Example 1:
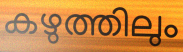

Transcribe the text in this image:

കഴുത്തിലും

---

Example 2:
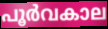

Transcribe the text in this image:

പൂർവകാല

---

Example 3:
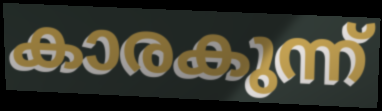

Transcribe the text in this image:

കാരകുന്ന്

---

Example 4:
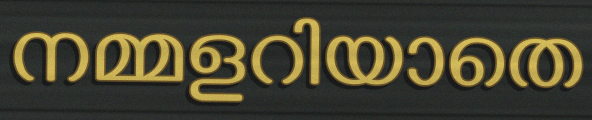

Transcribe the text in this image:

നമ്മളറിയാതെ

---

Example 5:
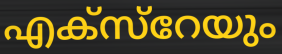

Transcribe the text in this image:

എക്സ്റേയും